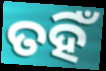
ତହିଁ